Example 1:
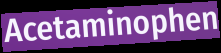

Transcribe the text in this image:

Acetaminophen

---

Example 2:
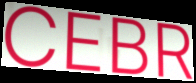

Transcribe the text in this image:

CEBR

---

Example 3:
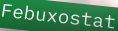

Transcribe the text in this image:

Febuxostat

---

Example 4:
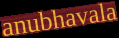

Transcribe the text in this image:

anubhavala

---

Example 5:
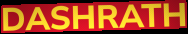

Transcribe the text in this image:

DASHRATH